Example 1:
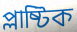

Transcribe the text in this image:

প্লাষ্টিক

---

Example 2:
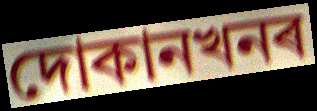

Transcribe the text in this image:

দোকানখনৰ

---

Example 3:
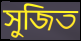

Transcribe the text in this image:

সুজিত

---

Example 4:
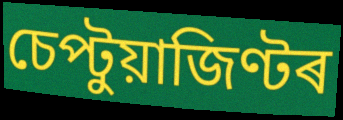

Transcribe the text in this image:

চেপ্টুয়াজিণ্টৰ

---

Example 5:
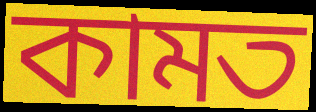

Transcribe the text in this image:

কামত